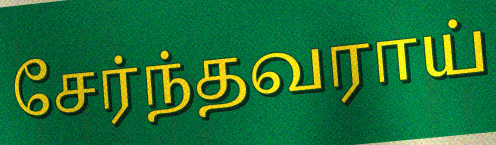
சேர்ந்தவராய்